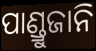
ପାଣ୍ଡ୍ରୁଜାନି